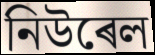
নিউৰেল